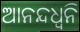
ଆନନ୍ଦଧ୍ଵନି